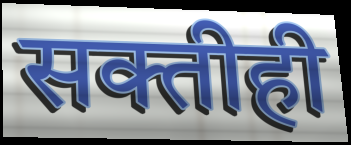
सक्तीही